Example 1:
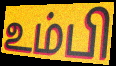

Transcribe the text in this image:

உம்பி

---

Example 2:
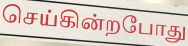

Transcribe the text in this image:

செய்கின்றபோது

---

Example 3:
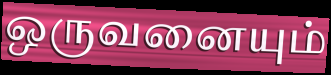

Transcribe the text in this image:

ஒருவனையும்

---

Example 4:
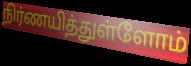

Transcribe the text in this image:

நிர்ணயித்துள்ளோம்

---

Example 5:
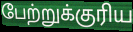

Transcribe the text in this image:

பேற்றுக்குரிய